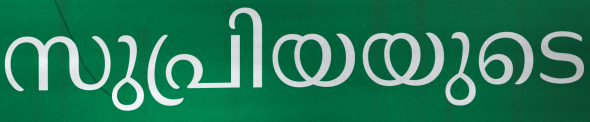
സുപ്രിയയുടെ